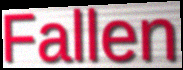
Fallen